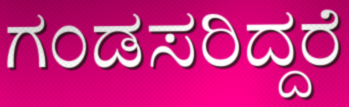
ಗಂಡಸರಿದ್ದರೆ